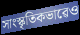
সাংস্কৃতিকভাৱেও